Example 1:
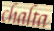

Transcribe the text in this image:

chalta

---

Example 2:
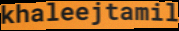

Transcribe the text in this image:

khaleejtamil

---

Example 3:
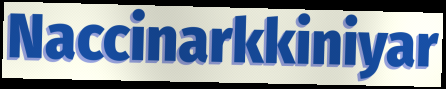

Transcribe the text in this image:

Naccinarkkiniyar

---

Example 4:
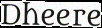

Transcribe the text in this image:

Dheere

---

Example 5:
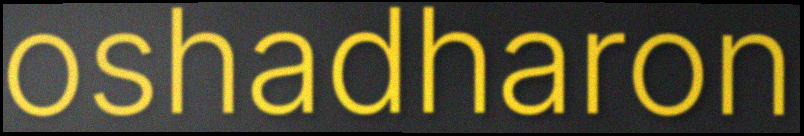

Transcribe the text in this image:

oshadharon